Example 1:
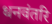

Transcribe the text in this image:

धनवंतरि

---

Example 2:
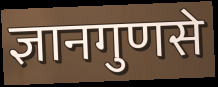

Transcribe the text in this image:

ज्ञानगुणसे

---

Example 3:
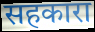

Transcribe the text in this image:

सहकारा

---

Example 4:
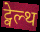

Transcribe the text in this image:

ट्वेल्थ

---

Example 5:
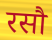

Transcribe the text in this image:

रसौ